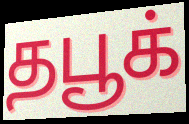
தபூக்